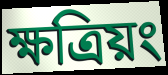
ক্ষত্রিয়ং